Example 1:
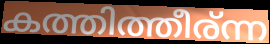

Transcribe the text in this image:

കത്തിത്തീര്ന്ന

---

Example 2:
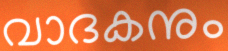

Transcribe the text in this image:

വാദകനും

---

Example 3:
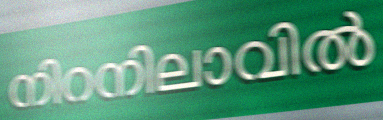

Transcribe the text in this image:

നിറനിലാവിൽ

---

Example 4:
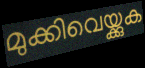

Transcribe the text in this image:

മുക്കിവെയ്ക്കുക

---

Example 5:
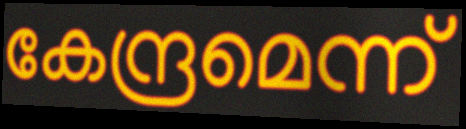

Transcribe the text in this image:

കേന്ദ്രമെന്ന്